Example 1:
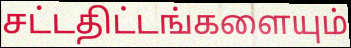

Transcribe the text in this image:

சட்டதிட்டங்களையும்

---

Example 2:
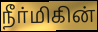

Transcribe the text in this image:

நீர்மிகின்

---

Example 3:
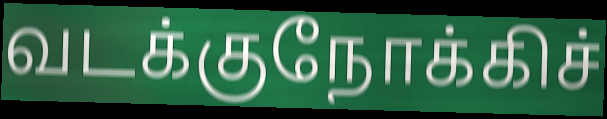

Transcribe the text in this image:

வடக்குநோக்கிச்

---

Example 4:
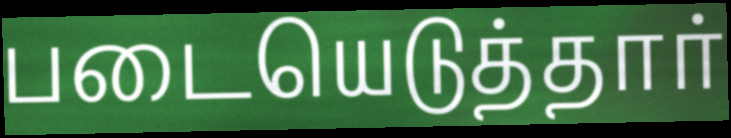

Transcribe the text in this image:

படையெடுத்தார்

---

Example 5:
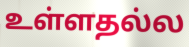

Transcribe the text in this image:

உள்ளதல்ல